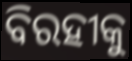
ବିରହୀକୁ